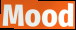
Mood